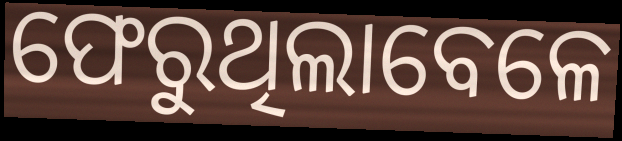
ଫେରୁଥିଲାବେଳେ